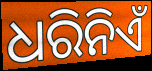
ଧରିନିଏଁ